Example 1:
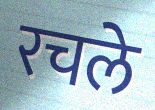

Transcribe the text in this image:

रचले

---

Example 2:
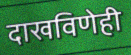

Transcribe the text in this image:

दाखविणेही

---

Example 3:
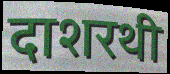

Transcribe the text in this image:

दाशरथी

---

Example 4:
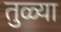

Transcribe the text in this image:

तुळ्या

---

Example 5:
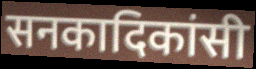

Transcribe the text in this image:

सनकादिकांसी